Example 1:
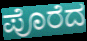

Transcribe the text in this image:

ಪೊರೆದ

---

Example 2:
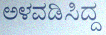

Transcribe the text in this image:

ಅಳವಡಿಸಿದ್ದ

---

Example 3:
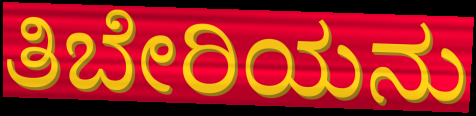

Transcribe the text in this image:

ತಿಬೇರಿಯನು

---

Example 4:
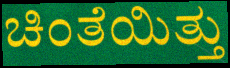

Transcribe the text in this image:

ಚಿಂತೆಯಿತ್ತು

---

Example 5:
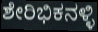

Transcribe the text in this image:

ಶೇರಿಭಿಕನಳ್ಳಿ